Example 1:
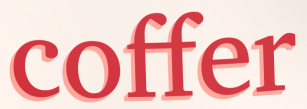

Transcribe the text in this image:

coffer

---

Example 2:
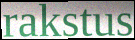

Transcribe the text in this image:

rakstus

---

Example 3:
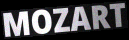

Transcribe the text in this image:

MOZART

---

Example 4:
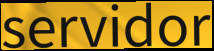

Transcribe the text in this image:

servidor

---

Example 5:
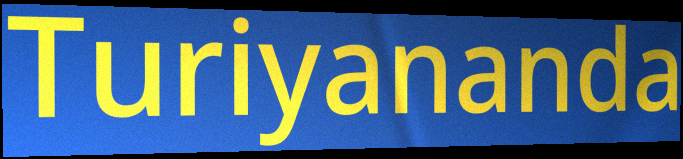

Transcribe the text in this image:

Turiyananda